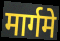
मार्गमे